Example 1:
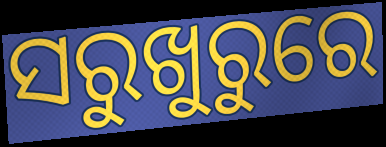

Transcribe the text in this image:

ସରୁଖୁରୁରେ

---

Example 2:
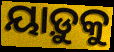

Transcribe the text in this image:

ୟାଡ଼ୁକୁ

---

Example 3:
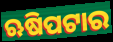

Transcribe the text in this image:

ଋଷିପଟାର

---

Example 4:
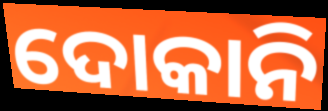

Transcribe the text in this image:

ଦୋକାନି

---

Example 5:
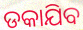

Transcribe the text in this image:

ଡକାଯିବ